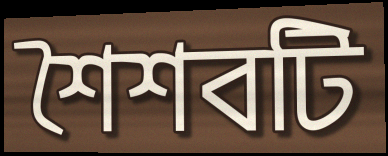
শৈশবটি